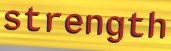
strength